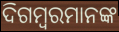
ଦିଗମ୍ବରମାନଙ୍କ